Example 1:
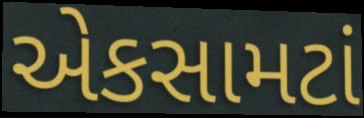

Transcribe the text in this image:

એકસામટાં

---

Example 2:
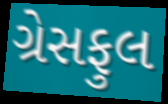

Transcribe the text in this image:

ગ્રેસફુલ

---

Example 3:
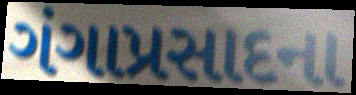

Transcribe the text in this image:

ગંગાપ્રસાદના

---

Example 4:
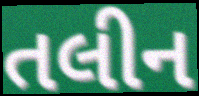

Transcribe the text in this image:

તલીન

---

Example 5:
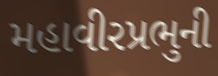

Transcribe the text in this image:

મહાવીરપ્રભુની